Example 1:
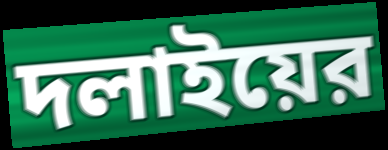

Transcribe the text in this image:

দলাইয়ের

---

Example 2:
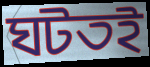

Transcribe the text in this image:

ঘটতই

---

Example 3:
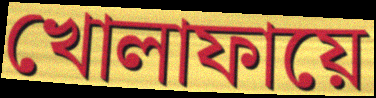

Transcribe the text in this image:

খোলাফায়ে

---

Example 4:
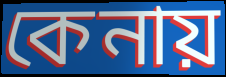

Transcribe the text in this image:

কেনায়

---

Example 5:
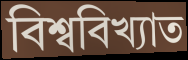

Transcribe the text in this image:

বিশ্ববিখ্যাত